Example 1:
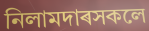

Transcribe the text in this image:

নিলামদাৰসকলে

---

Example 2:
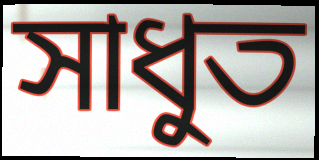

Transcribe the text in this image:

সাধুত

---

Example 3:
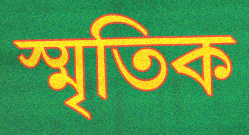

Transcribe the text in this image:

স্মৃতিক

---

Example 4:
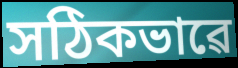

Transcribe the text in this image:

সঠিকভাৱে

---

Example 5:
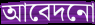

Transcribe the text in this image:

আবেদনো